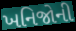
ખનિજોની